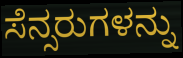
ಸೆನ್ಸರುಗಳನ್ನು